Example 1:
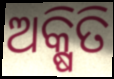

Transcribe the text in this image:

ଅକ୍ଷିତି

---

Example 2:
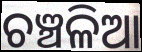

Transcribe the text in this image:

ଚଞ୍ଚଳିଆ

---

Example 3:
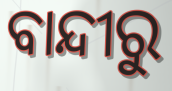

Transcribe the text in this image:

ବାନ୍ଦୀରୁ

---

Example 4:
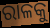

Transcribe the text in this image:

ରାଳକୁ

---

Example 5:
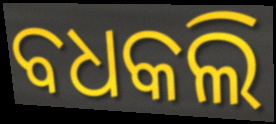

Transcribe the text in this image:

ବଧକଲି